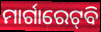
ମାର୍ଗାରେଟ୍‌ବି